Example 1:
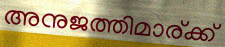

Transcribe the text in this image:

അനുജത്തിമാര്ക്ക്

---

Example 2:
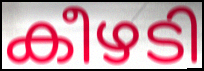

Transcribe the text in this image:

കീഴടി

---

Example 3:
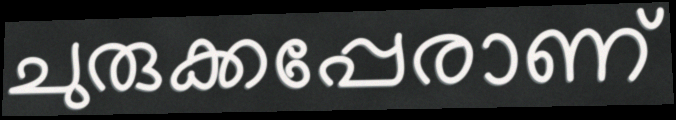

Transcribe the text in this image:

ചുരുക്കപ്പേരാണ്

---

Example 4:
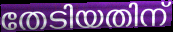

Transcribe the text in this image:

തേടിയതിന്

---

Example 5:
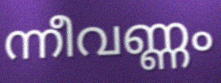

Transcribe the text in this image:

ന്നീവണ്ണം